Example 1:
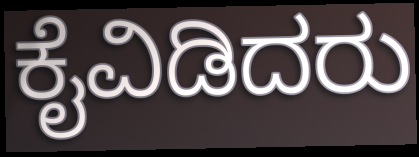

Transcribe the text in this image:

ಕೈವಿಡಿದರು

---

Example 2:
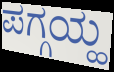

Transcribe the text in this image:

ಪಗ್ಗಯ್ಹ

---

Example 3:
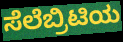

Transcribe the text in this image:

ಸೆಲೆಬ್ರಿಟಿಯ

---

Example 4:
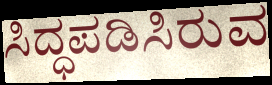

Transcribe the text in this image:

ಸಿದ್ಧಪಡಿಸಿರುವ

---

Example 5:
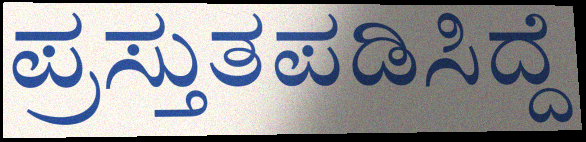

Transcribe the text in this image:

ಪ್ರಸ್ತುತಪಡಿಸಿದ್ದೆ